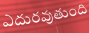
ఎదురవుతుంది